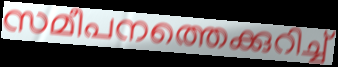
സമീപനത്തെക്കുറിച്ച്